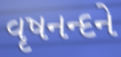
વૃષનન્દને